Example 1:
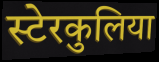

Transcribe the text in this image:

स्टेरकुलिया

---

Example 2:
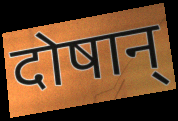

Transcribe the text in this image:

दोषान्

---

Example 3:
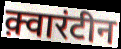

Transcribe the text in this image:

क़्वारंटीन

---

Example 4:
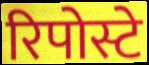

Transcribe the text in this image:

रिपोस्टे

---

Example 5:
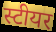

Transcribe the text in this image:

स्टीयर